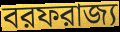
বরফরাজ্য